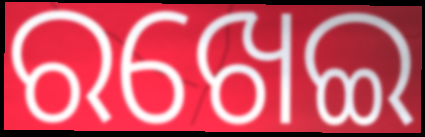
ରଖେଇ